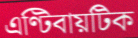
এণ্টিবায়টিক